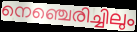
നെഞ്ചെരിച്ചിലും